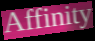
Affinity